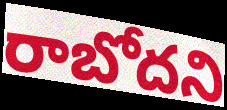
రాబోదని